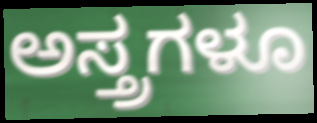
ಅಸ್ತ್ರಗಳೂ